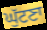
ਘੁੱਟਣਾ